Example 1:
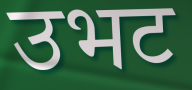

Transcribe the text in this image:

उभट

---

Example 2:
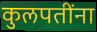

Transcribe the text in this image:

कुलपतींना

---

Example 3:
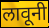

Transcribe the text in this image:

लावूनी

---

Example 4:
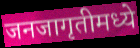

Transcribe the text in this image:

जनजागृतीमध्ये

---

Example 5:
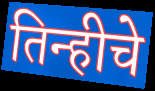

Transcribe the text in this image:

तिन्हीचे